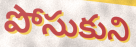
పోసుకుని